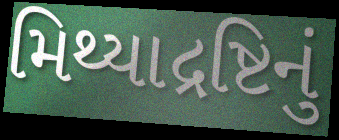
મિથ્યાદ્રષ્ટિનું